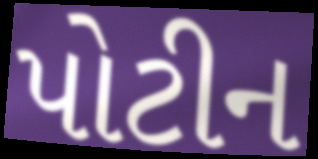
પોટીન